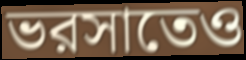
ভরসাতেও